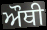
ਔਥੀ